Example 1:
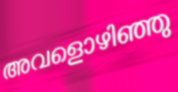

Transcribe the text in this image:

അവളൊഴിഞ്ഞു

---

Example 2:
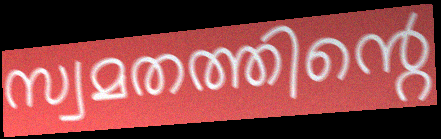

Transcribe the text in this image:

സ്വമതത്തിന്റെ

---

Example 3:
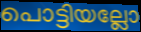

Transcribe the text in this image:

പൊട്ടിയല്ലോ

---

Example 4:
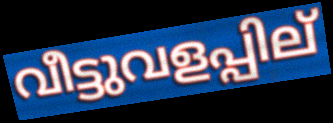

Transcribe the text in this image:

വീട്ടുവളപ്പില്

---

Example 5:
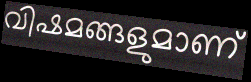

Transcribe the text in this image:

വിഷമങ്ങളുമാണ്